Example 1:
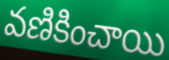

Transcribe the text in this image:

వణికించాయి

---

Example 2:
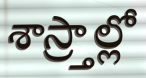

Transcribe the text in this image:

శాస్ర్తాల్లో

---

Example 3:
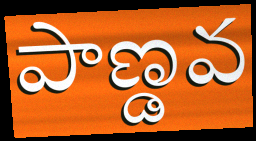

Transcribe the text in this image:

పాణ్డవ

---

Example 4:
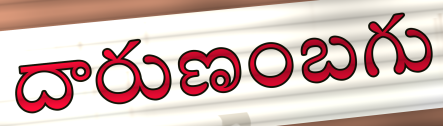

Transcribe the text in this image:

దారుణంబగు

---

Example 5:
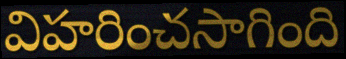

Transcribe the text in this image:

విహరించసాగింది